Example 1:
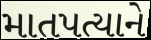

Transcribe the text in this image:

માતપત્યાને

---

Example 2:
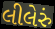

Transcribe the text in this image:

લીલેરું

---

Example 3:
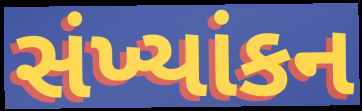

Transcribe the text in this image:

સંખ્યાંકન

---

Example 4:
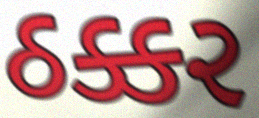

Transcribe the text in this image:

ઠક્કર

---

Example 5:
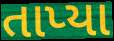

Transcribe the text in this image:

તાપ્યા